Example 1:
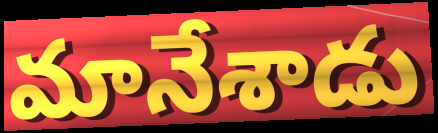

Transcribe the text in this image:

మానేశాడు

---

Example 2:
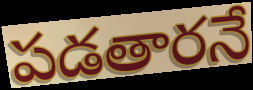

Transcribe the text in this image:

పడతారనే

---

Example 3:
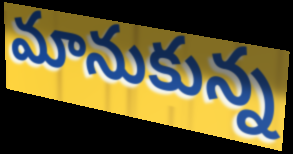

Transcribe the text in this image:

మానుకున్న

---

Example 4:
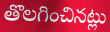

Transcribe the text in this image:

తొలగించినట్లు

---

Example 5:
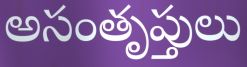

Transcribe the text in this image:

అసంతృప్తులు